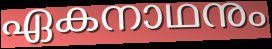
ഏകനാഥനും